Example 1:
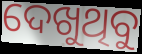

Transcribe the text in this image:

ଦେଖୁଥିବୁ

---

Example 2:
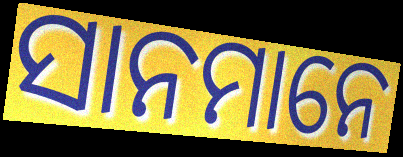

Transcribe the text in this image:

ସାନମାନେ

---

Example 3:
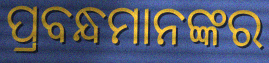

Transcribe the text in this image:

ପ୍ରବନ୍ଧମାନଙ୍କର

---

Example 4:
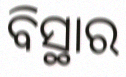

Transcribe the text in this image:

ବିସ୍ଥାର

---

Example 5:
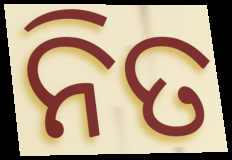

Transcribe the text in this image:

ନିତ